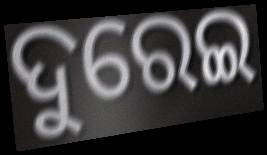
ଦୁରେଇ